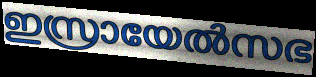
ഇസ്രായേൽസഭ